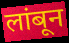
लांबून